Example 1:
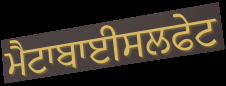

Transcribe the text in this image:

ਮੈਟਾਬਾਈਸਲਫੇਟ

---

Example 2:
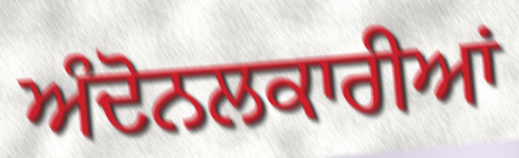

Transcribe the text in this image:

ਅੰਦੋਨਲਕਾਰੀਆਂ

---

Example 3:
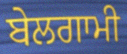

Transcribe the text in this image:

ਬੇਲਗਾਮੀ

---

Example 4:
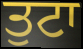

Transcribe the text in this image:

ਤੁਟਾ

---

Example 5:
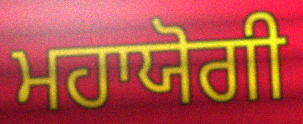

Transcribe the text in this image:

ਮਹਾਯੋਗੀ